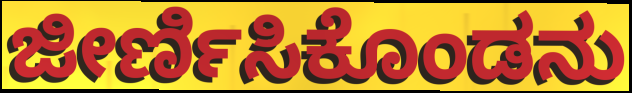
ಜೀರ್ಣಿಸಿಕೊಂಡನು